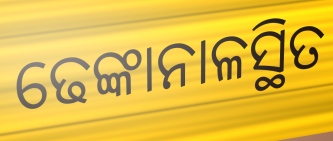
ଢେଙ୍କାନାଳସ୍ଥିତ